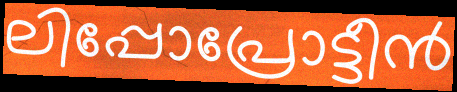
ലിപ്പോപ്രോട്ടീൻ